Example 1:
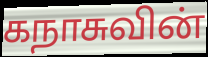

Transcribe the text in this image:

கநாசுவின்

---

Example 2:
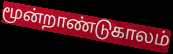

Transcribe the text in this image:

மூன்றாண்டுகாலம்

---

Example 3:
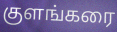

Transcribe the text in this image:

குளங்கரை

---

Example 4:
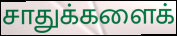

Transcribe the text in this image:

சாதுக்களைக்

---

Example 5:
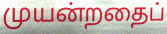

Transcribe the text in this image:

முயன்றதைப்